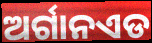
ଅର୍ଗାନଏଡ